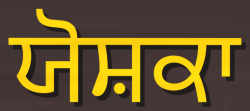
ਯੋਸ਼ਕਾ